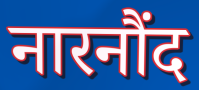
नारनौंद